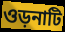
ওড়নাটি